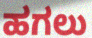
ಹಗಲು